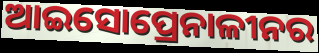
ଆଇସୋପ୍ରେନାଳୀନର